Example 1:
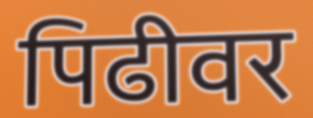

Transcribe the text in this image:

पिढीवर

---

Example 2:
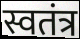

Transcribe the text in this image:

स्वतंत्र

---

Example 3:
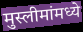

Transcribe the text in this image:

मुस्लीमांमध्ये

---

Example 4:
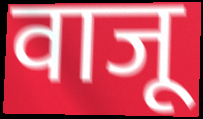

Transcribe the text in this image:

वाजू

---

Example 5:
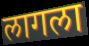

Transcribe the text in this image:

लागला